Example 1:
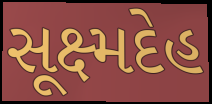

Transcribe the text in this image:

સૂક્ષ્મદેહ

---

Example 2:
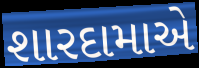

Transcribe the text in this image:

શારદામાએ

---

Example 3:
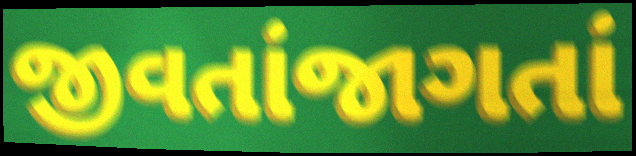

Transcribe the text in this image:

જીવતાંજાગતાં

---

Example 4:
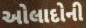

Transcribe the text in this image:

ઓલાદોની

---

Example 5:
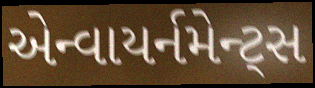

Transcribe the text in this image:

એન્વાયર્નમેન્ટ્સ